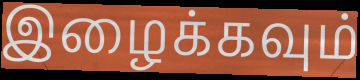
இழைக்கவும்